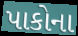
પાકોના